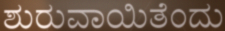
ಶುರುವಾಯಿತೆಂದು